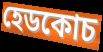
হেডকোচ